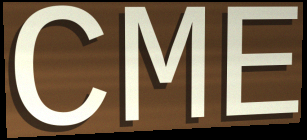
CME